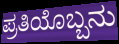
ಪ್ರತಿಯೊಬ್ಬನು